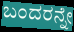
ಬಂದರನ್ನೇ